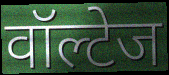
वॉल्टेज